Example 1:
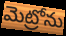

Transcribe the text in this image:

మెట్రోను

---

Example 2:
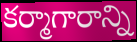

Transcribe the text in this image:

కర్మాగారాన్ని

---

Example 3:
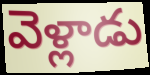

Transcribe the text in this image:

వెళ్లాడు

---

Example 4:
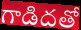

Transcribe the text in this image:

గాడిదతో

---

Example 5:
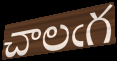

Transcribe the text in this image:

చాలఁగ